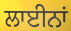
ਲਾਈਨਾਂ